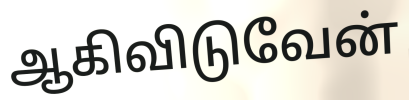
ஆகிவிடுவேன்